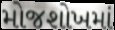
મોજશોખમાં